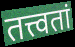
तत्त्वतां